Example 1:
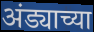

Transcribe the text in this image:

अंड्याच्या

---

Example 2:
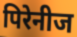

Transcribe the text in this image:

पिरेनीज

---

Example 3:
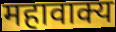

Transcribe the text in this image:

महावाक्य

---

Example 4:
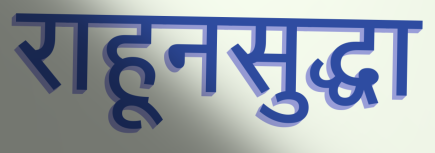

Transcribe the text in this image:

राहूनसुद्धा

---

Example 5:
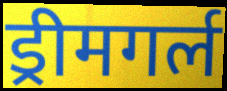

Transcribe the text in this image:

ड्रीमगर्ल